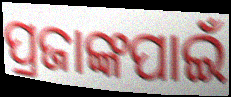
ପ୍ରଜାଙ୍କପାଇଁ